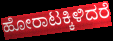
ಹೋರಾಟಕ್ಕಿಳಿದರೆ